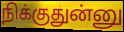
நிக்குதுன்னு